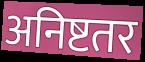
अनिष्टतर